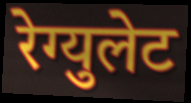
रेग्‍युलेट